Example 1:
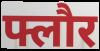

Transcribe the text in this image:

फ्लौर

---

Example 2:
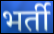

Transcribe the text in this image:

भर्ती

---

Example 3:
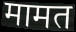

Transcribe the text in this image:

मामत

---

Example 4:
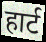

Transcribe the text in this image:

हार्ट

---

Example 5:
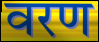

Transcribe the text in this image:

वरण